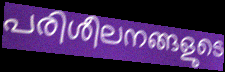
പരിശീലനങ്ങളുടെ